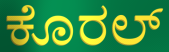
ಕೊರಲ್